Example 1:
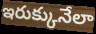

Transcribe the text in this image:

ఇరుక్కునేలా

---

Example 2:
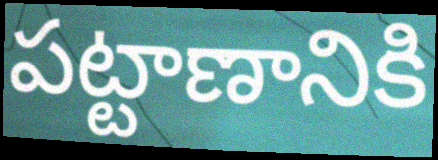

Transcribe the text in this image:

పట్టాణానికి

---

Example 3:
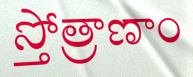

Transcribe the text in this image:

స్తోత్రాణాం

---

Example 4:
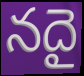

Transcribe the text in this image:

నదై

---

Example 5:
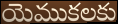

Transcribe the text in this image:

యెముకలకు